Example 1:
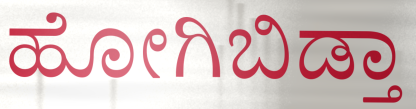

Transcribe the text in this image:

ಹೋಗಿಬಿಡ್ತಾ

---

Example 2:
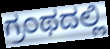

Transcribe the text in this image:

ಗ್ರಂಥದಲ್ಲಿ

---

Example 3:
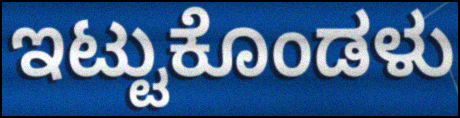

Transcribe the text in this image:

ಇಟ್ಟುಕೊಂಡಳು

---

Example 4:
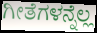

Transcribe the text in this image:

ಗೀತೆಗಳನ್ನೆಲ್ಲ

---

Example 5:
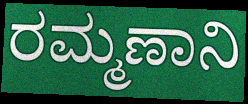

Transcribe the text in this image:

ರಮ್ಮಣಾನಿ